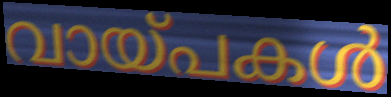
വായ്പകൾ